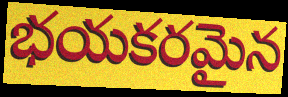
భయకరమైన